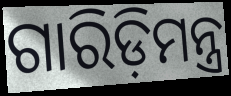
ଗାରିଡ଼ିମନ୍ତ୍ର